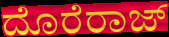
ದೊರೆರಾಜ್